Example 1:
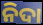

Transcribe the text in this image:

ନିଦା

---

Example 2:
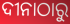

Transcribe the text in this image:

ଦୀନାଠାରୁ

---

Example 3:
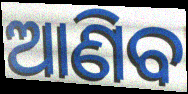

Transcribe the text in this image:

ଆଣିବ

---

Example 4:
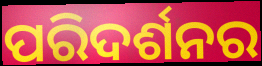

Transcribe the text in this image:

ପରିଦର୍ଶନର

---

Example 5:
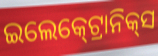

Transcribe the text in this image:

ଇଲେକ୍‍ଟ୍ରୋନିକ୍‍ସ